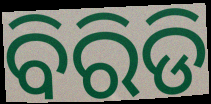
ବିରିଡି